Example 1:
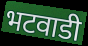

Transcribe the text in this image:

भटवाडी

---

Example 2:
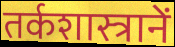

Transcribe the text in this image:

तर्कशास्त्रानें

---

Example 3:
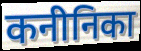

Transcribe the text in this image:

कनीनिका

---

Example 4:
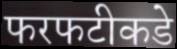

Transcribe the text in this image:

फरफटीकडे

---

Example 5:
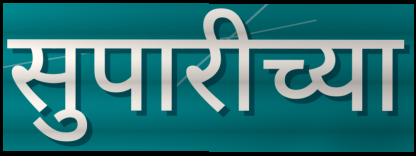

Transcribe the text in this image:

सुपारीच्या